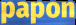
papon